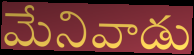
మేనివాడు